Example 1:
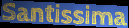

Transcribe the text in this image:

Santissima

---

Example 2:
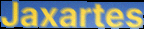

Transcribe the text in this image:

Jaxartes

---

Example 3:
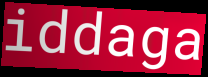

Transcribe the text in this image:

iddaga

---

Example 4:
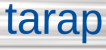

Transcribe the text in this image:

tarap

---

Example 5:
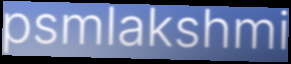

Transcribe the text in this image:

psmlakshmi